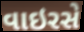
વાઇરસે